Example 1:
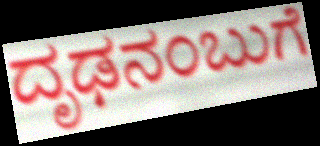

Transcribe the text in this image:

ದೃಢನಂಬುಗೆ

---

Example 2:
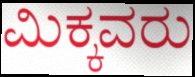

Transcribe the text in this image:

ಮಿಕ್ಕವರು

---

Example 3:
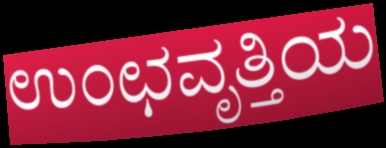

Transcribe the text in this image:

ಉಂಛವೃತ್ತಿಯ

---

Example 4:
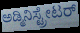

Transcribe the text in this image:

ಅಡ್ಮಿನಿಸ್ಟ್ರೇಟರ್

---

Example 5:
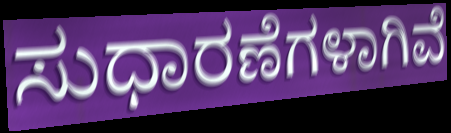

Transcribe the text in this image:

ಸುಧಾರಣೆಗಳಾಗಿವೆ